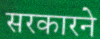
सरकारने